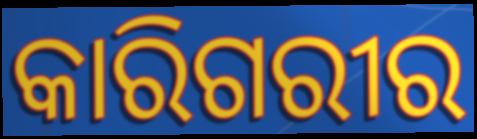
କାରିଗରୀର